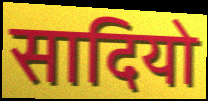
सादियो